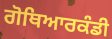
ਗੋਥਿਆਰਕੰਡੀ